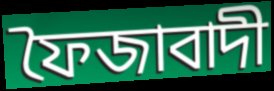
ফৈজাবাদী